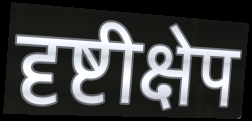
दृष्टीक्षेप